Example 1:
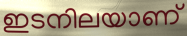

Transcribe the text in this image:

ഇടനിലയാണ്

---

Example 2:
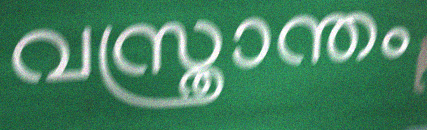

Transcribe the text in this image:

വസ്ത്രാന്തം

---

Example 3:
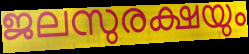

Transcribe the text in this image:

ജലസുരക്ഷയും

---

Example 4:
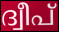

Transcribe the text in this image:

ദ്വീപ്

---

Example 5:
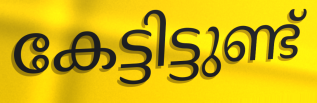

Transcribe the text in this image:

കേട്ടിട്ടുണ്ട്